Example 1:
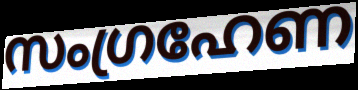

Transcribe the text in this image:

സംഗ്രഹേണ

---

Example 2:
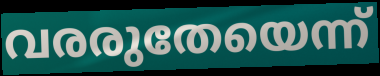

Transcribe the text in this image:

വരരുതേയെന്ന്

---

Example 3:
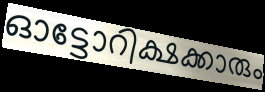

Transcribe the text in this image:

ഓട്ടോറിക്ഷക്കാരും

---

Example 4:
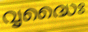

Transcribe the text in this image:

വൃദ്ധൈഃ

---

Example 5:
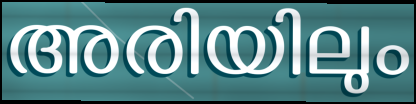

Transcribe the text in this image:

അരിയിലും